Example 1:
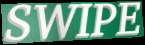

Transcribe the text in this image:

SWIPE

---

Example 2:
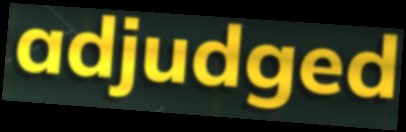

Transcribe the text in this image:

adjudged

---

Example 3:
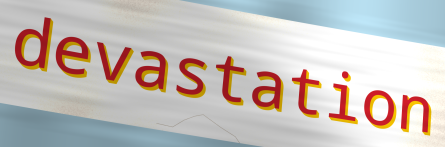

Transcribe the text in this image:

devastation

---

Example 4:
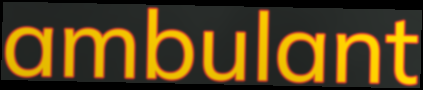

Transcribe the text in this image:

ambulant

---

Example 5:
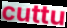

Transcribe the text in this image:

cuttu